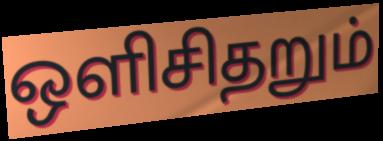
ஒளிசிதறும்